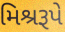
મિશ્રરૂપે